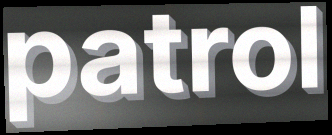
patrol